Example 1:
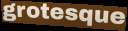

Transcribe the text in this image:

grotesque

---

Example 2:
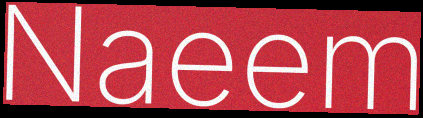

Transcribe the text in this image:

Naeem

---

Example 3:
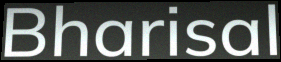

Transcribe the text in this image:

Bharisal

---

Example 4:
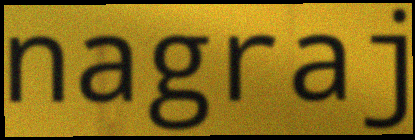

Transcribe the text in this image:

nagraj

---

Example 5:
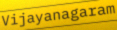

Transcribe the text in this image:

Vijayanagaram